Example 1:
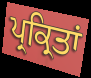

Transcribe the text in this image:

ਪ੍ਰਕ੍ਰਿਤਾਂ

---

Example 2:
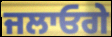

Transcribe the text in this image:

ਜਲਾਓਗੇ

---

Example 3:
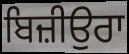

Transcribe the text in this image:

ਬਿਜ਼ੀਉਰਾ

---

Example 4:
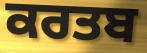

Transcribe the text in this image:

ਕਰਤਬ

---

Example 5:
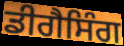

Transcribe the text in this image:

ਡੀਗੈਸਿੰਗ